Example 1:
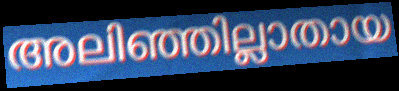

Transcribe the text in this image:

അലിഞ്ഞില്ലാതായ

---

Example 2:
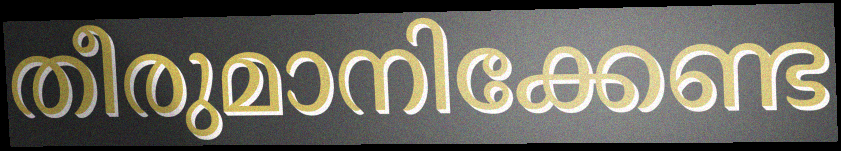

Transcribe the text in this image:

തീരുമാനിക്കേണ്ട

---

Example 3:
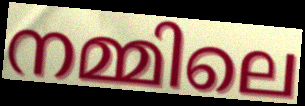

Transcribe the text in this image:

നമ്മിലെ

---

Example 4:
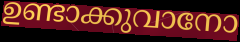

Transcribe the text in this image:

ഉണ്ടാക്കുവാനോ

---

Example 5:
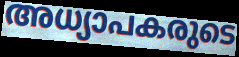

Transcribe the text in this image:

അധ്യാപകരുടെ